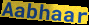
Aabhaar